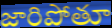
జారిపోతూ